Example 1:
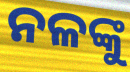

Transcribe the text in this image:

ନଳଙ୍କୁ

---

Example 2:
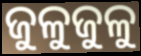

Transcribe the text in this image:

ଜୁଳୁଜୁଳୁ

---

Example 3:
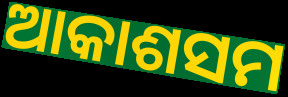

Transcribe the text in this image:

ଆକାଶସମ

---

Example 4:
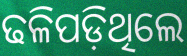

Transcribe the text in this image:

ଢଳିପଡ଼ିଥିଲେ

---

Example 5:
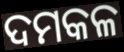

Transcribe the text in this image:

ଦମକଳ